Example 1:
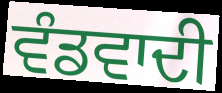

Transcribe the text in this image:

ਵੰਡਵਾਦੀ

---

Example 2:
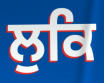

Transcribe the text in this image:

ਲੁਕਿ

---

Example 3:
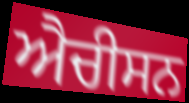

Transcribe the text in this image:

ਐਚੀਸਨ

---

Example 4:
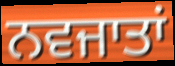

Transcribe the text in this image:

ਨਵਜਾਤਾਂ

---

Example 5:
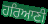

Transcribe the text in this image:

ਹਰਿਆਣੀ